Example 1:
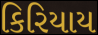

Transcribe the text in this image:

કિરિયાય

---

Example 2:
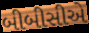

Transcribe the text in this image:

બીબીસીએ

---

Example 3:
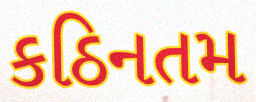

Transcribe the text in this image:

કઠિનતમ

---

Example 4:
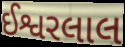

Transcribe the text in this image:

ઈશ્વરલાલ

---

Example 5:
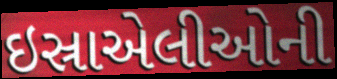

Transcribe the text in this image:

ઇસ્રાએલીઓની